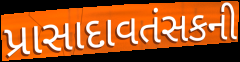
પ્રાસાદાવતંસકની